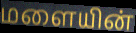
மளையின்